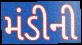
મંડીની